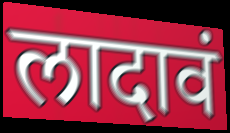
लादावं